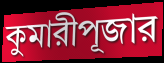
কুমারীপূজার